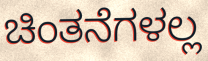
ಚಿಂತನೆಗಳಲ್ಲ